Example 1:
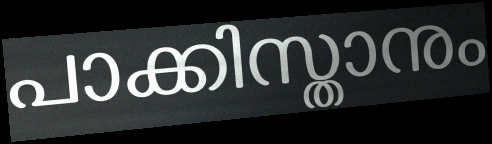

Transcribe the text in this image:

പാക്കിസ്താനും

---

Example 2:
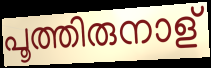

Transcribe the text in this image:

പൂത്തിരുനാള്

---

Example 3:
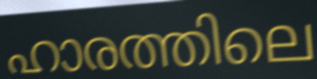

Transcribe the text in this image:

ഹാരത്തിലെ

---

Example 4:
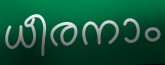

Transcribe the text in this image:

ധീരനാം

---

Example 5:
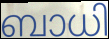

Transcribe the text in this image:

ബാധി